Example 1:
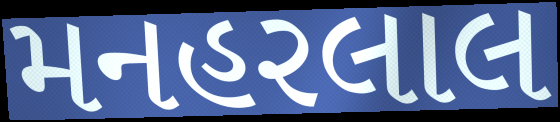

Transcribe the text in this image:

મનહરલાલ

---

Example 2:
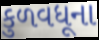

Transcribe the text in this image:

કુળવધૂના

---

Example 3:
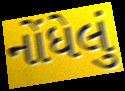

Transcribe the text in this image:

નોંધેલું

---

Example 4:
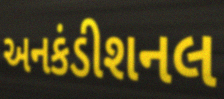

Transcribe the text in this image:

અનકંડીશનલ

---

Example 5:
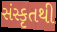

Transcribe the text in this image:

સંસ્કૃતથી